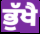
ਭੁੱਖੈ